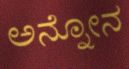
ಅನ್ನೋನ